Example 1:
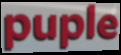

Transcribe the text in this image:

puple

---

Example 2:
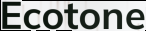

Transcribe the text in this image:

Ecotone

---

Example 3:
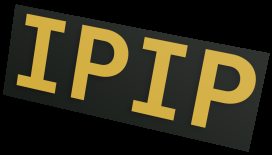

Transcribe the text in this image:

IPIP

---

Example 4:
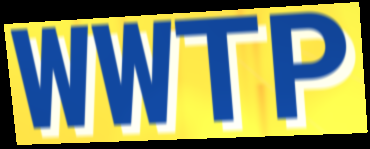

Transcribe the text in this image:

WWTP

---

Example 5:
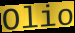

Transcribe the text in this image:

Olio